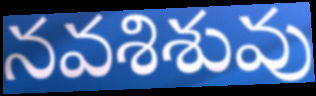
నవశిశువు